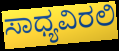
ಸಾಧ್ಯವಿರಲಿ